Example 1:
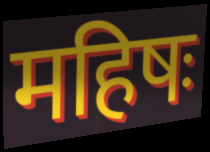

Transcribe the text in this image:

महिषः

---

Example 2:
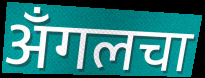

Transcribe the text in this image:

अँगलचा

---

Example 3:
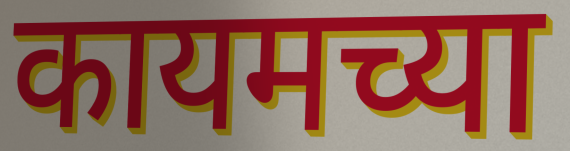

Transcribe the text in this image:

कायमच्या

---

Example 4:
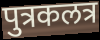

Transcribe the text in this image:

पुत्रकलत्र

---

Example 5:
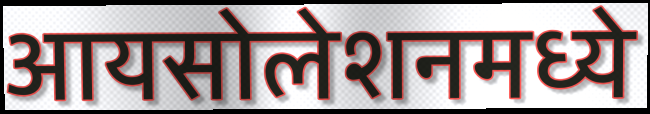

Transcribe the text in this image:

आयसोलेशनमध्ये